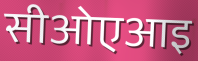
सीओएआइ